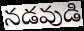
నడవుడి